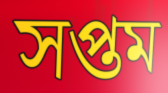
সপ্তম